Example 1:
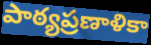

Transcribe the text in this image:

పాఠ్యప్రణాళికా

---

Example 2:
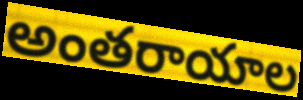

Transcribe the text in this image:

అంతరాయాల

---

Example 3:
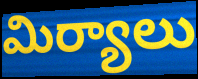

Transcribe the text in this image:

మిర్యాలు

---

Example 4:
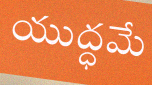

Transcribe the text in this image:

యుద్ధమే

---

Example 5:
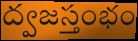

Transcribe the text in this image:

ద్వజస్తంభం